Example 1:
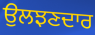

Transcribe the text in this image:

ਉਲਝਣਦਾਰ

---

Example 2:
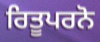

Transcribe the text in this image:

ਰਿਤੂਪਰਨੋ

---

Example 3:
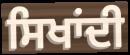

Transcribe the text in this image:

ਸਿਖਾਂਦੀ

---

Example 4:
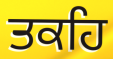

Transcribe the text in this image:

ਤਕਹਿ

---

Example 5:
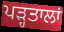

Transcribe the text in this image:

ਪੜ੍ਹਤਾਲਾਂ